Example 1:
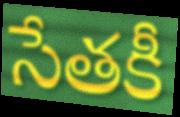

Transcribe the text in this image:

సేతకీ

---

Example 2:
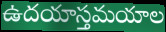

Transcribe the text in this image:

ఉదయాస్తమయాల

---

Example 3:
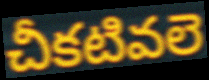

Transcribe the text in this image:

చీకటివలె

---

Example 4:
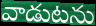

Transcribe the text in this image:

వాడుటను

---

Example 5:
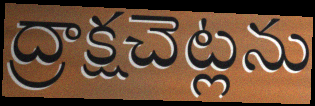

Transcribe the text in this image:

ద్రాక్షచెట్లను